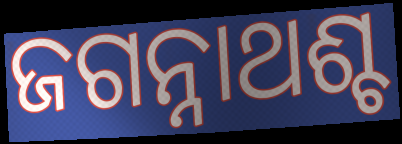
ଜଗନ୍ନାଥଶ୍ଚ